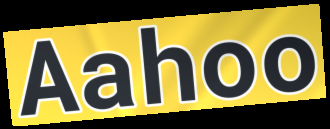
Aahoo